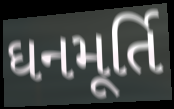
ઘનમૂર્તિ